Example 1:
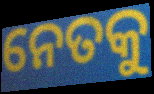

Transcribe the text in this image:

ନେତକୁ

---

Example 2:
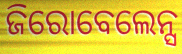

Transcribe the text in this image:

ଜିରୋବେଲେନ୍ସ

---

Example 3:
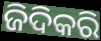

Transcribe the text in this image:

ଜିଦିକରି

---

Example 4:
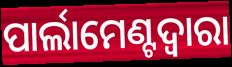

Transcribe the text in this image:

ପାର୍ଲାମେଣ୍ଟଦ୍ୱାରା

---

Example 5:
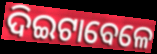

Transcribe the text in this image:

ଦିଇଟାବେଳେ